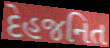
દેહજનિત